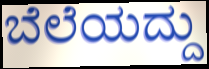
ಬೆಲೆಯದ್ದು